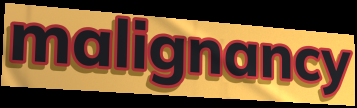
malignancy